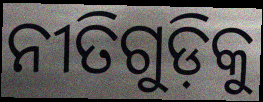
ନୀତିଗୁଡ଼ିକୁ